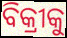
ବିକ୍ରୀକୁ